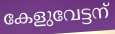
കേളുവേട്ടന്